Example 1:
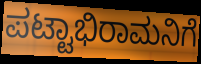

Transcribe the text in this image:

ಪಟ್ಟಾಭಿರಾಮನಿಗೆ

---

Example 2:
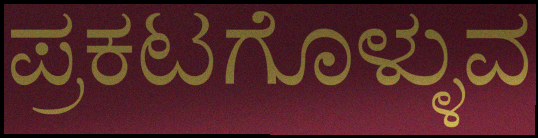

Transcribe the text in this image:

ಪ್ರಕಟಗೊಳ್ಳುವ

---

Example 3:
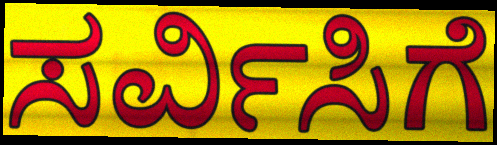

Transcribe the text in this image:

ಸರ್ವಿಸಿಗೆ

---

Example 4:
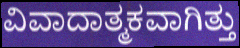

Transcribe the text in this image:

ವಿವಾದಾತ್ಮಕವಾಗಿತ್ತು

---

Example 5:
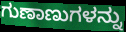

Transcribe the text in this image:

ಗುಣಾಣುಗಳನ್ನು